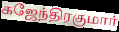
கஜேந்திரகுமார்